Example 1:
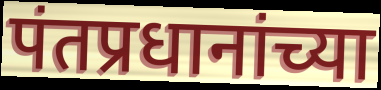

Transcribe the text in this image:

पंतप्रधानांच्या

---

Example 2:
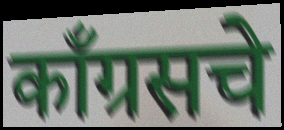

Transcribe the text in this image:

काँग्रसचे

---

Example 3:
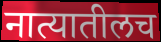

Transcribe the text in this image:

नात्यातीलच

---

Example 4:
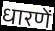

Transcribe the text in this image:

धारणें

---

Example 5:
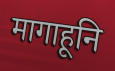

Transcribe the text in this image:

मागाहूनि